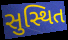
સુસ્થિત